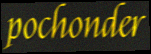
pochonder